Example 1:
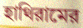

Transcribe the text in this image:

হাথিরামের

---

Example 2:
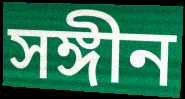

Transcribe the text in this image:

সঙ্গীন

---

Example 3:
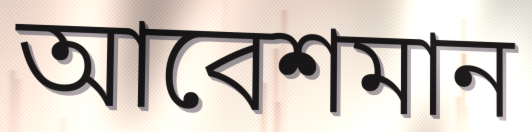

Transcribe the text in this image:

আবেশমান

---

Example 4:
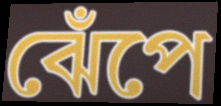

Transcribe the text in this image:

ঝেঁপে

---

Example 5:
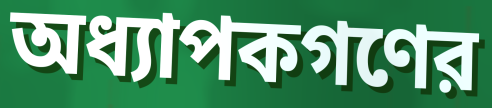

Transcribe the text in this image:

অধ্যাপকগণের